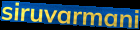
siruvarmani